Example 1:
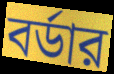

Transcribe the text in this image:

বর্ডার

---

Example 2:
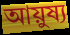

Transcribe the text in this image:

আয়ুষ্য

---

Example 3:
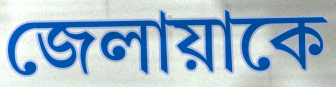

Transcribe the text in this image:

জেলায়াকে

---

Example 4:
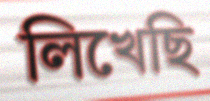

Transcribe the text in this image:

লিখেছি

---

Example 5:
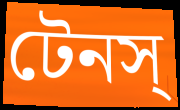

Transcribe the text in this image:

টেনস্